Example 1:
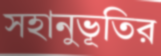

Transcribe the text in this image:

সহানুভূতির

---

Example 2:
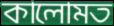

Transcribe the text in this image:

কালোমত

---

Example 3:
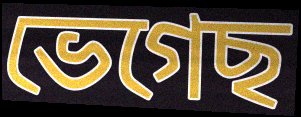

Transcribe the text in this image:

ভেগেছ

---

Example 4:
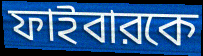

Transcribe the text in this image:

ফাইবারকে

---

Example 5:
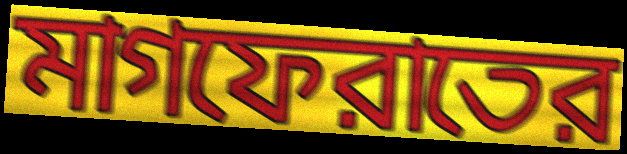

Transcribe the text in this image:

মাগফেরাতের